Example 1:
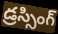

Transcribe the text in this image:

డ్రస్సింగ్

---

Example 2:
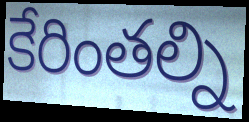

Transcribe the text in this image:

కేరింతల్ని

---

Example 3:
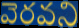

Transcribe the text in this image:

వెరవని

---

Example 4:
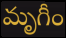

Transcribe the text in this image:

మృగీం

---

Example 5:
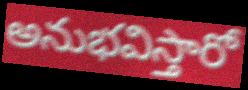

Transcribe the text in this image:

అనుభవిస్తారో